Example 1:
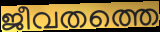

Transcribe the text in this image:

ജീവതത്തെ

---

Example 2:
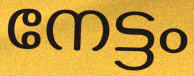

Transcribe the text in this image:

നേട്ടം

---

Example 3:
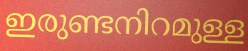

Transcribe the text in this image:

ഇരുണ്ടനിറമുള്ള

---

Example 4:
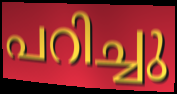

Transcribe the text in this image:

പറിച്ചു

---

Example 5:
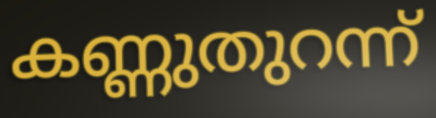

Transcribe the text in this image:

കണ്ണുതുറന്ന്